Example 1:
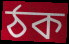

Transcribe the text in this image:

ঠক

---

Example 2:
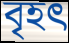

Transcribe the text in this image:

বৃহৎ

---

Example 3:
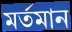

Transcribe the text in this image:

মর্তমান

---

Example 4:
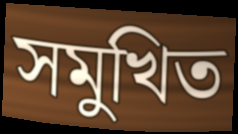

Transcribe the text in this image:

সমুখিত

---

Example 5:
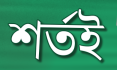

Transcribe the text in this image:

শর্তই